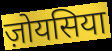
ज़ोयसिया